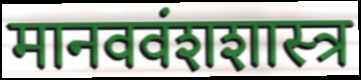
मानववंशशास्त्र